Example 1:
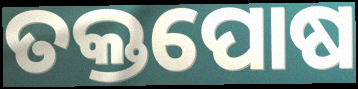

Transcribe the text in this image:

ତକ୍ତପୋଷ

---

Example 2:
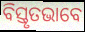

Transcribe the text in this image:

ବିସ୍ତୃତଭାବେ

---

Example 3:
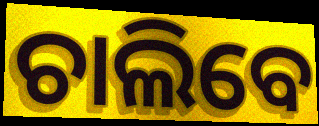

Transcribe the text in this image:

ଚାଲିବେ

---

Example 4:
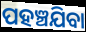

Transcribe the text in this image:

ପହଞ୍ଚଯିବା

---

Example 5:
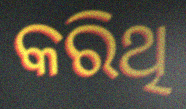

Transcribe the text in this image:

କରିଥି